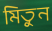
মিতুন